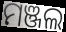
ମଞ୍ଜଲ